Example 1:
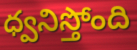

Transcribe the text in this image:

ధ్వనిస్తోంది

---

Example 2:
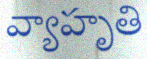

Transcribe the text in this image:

వ్యాహృతి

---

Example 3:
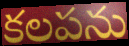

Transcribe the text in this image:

కలపను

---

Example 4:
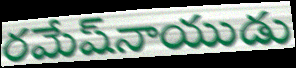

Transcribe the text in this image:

రమేష్‌నాయుడు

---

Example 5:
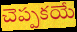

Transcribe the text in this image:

చెప్పకయే